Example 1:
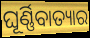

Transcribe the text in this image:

ଘୂର୍ଣ୍ଣିବାତ୍ୟାର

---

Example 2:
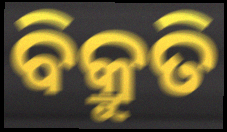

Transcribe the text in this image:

ବିକ୍ରୁତି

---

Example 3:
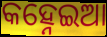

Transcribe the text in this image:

କହ୍ନେଇଆ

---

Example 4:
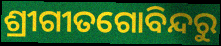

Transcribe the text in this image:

ଶ୍ରୀଗୀତଗୋବିନ୍ଦରୁ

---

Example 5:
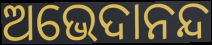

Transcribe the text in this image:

ଅଭେଦାନନ୍ଦ